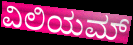
ವಿಲಿಯಮ್